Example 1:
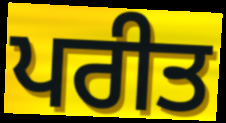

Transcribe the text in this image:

ਪਰੀਤ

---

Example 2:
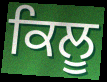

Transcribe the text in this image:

ਕਿਲੂ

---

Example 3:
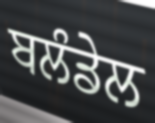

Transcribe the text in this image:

ਬਲੰਡੇਲ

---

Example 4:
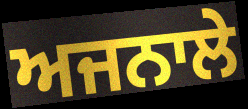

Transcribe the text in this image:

ਅਜਨਾਲੇ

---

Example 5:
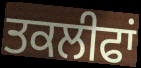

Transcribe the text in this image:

ਤਕਲੀਫਾਂ